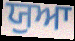
ਯੁਆ